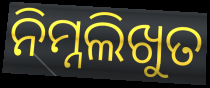
ନିମ୍ନଲିଖୁତ